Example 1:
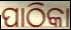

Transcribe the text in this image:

ପାଠିକା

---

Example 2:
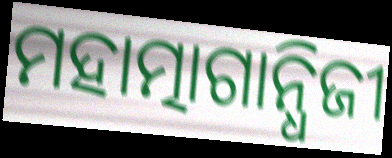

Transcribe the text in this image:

ମହାତ୍ମାଗାନ୍ଧିଜୀ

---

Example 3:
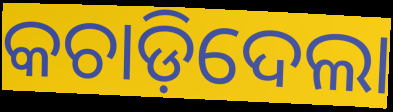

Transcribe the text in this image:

କଚାଡ଼ିଦେଲା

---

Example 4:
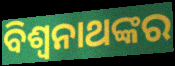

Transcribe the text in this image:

ବିଶ୍ୱନାଥଙ୍କର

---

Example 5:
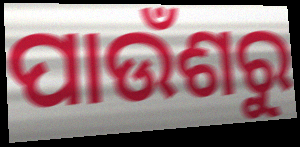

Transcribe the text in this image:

ପାଉଁଶରୁ